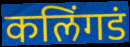
कलिंगडं